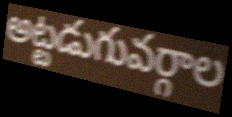
అట్టడుగువర్గాల